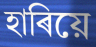
হাৰিয়ে